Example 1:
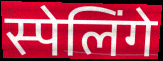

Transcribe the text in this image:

स्पेलिंगे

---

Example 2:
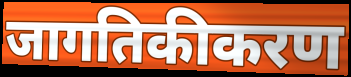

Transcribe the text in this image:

जागतिकीकरण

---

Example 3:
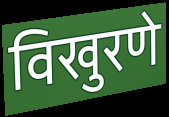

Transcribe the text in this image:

विखुरणे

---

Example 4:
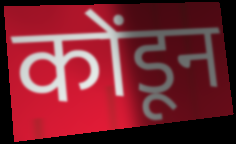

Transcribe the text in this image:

कोंडून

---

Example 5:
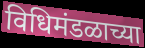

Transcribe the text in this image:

विधिमंडळाच्या